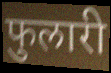
फुलारी